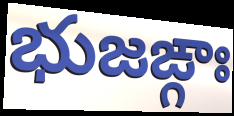
భుజఙ్గాః